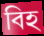
বিহ